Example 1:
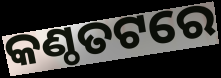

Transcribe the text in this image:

କଣ୍ଠତଟରେ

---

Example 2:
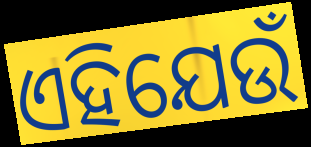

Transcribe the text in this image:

ଏହିଯେଉଁ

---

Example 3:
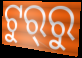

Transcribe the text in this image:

ଟୁର୍‍ରୁ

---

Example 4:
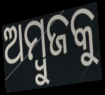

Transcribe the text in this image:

ଅମ୍ବୁଜକୁ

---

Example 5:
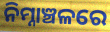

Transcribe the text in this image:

ନିମ୍ନାଞ୍ଚଳରେ